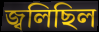
জ্বলিছিল